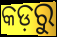
କଡ଼ରୁ